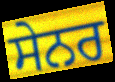
ਸੇਨਰ